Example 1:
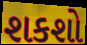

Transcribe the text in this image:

શકશો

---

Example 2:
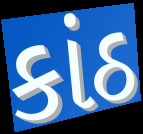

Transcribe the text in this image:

કાંઠ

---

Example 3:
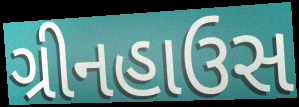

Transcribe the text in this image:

ગ્રીનહાઉસ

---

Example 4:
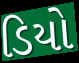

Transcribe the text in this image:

ડિયો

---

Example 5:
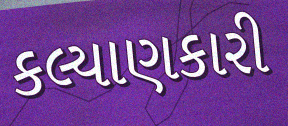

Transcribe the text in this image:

કલ્યાણકારી